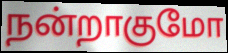
நன்றாகுமோ